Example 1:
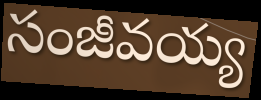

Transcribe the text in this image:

సంజీవయ్య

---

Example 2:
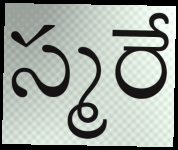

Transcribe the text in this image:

స్మరే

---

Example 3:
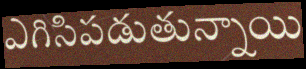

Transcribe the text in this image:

ఎగిసిపడుతున్నాయి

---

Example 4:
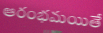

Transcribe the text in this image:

ఆరంభమయితే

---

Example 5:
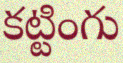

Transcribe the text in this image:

కట్టింగు